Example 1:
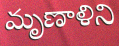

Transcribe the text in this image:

మృణాళిని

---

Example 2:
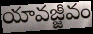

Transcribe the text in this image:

యావజ్జీవం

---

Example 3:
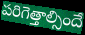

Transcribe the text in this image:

పరిగెత్తాల్సిందే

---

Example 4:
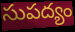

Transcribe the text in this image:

సుపద్యం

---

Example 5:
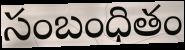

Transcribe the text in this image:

సంబంధితం